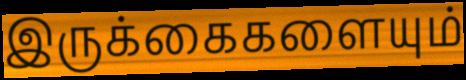
இருக்கைகளையும்